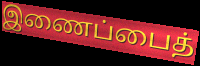
இணைப்பைத்